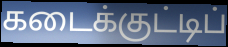
கடைக்குட்டிப்